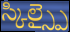
స్కిల్స్పై